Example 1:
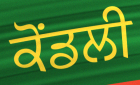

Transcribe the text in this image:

ਕੋਂਡਲੀ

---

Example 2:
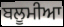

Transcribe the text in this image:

ਬਲੂਮੀਆ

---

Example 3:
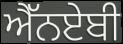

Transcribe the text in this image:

ਐੱਨਏਬੀ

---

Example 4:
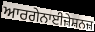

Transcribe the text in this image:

ਆਰਗੇਨਾਈਜ਼ੇਸ਼ਨਜ਼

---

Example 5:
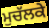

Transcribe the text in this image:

ਮੁਚੱਲਕੇ